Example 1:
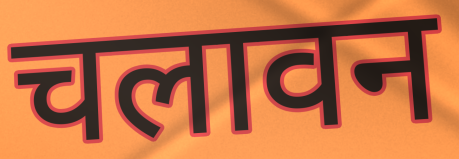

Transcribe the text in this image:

चलावन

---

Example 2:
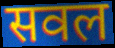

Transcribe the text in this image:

सवल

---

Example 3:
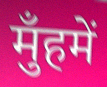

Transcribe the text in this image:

मुँहमें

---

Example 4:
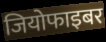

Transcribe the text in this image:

जियोफाइबर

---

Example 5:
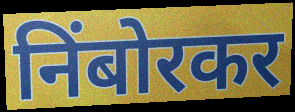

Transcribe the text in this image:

निंबोरकर